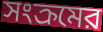
সংক্রমের